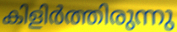
കിളിർത്തിരുന്നു